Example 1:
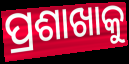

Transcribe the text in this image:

ପ୍ରଶାଖାକୁ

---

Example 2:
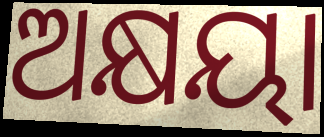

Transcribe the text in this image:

ଅକ୍ଷୟା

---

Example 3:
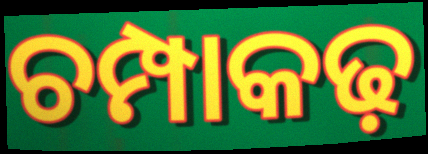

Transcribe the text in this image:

ଚମ୍ପାକଢ଼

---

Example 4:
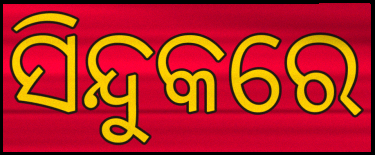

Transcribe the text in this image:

ସିନ୍ଦୁକରେ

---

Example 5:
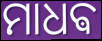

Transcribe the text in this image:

ମାଧଵ